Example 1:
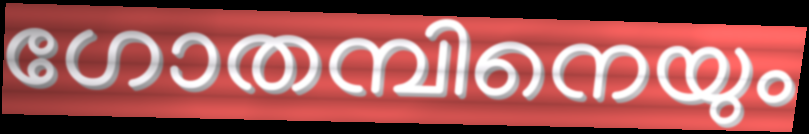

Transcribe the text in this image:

ഗോതമ്പിനെയും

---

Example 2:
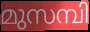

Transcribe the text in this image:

മുസമ്പി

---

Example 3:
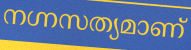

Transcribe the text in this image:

നഗ്നസത്യമാണ്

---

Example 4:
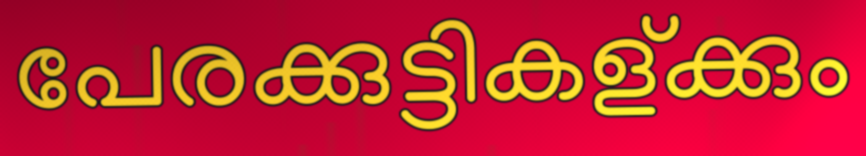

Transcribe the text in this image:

പേരക്കുട്ടികള്ക്കും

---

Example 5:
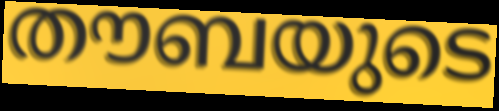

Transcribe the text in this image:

തൗബയുടെ